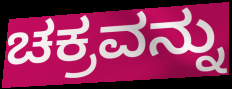
ಚಕ್ರವನ್ನು